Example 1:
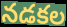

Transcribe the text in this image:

నడకల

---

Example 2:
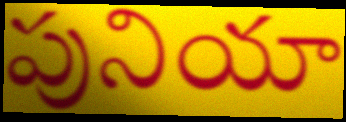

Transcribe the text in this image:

పునియా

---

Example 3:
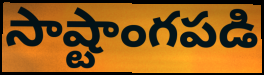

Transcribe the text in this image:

సాష్టాంగపడి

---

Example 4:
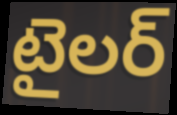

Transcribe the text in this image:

టైలర్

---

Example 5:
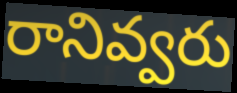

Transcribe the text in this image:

రానివ్వరు